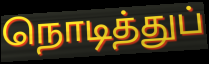
நொடித்துப்